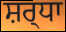
ਸ਼ਰ੍ਧਾ